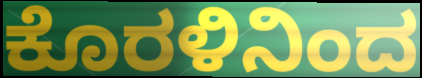
ಕೊರಳಿನಿಂದ